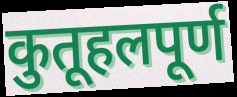
कुतूहलपूर्ण